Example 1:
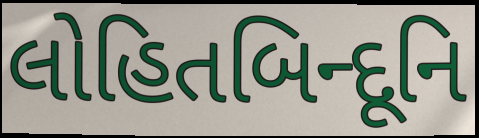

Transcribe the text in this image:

લોહિતબિન્દૂનિ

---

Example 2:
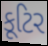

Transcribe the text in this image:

કૂટિર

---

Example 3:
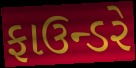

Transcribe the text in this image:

ફાઉન્ડરે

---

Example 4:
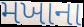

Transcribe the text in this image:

મખાના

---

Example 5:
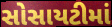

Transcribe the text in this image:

સોસાયટીમાં